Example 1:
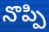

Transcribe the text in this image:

నొప్పి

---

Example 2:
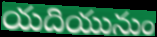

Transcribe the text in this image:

యదియునుం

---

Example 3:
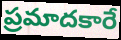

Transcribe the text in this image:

ప్రమాదకారే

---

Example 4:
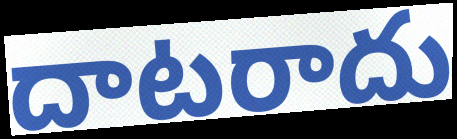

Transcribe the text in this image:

దాటరాదు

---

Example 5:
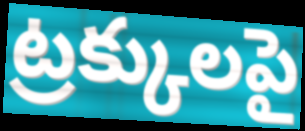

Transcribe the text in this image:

ట్రక్కులపై